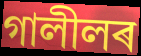
গালীলৰ